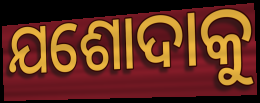
ଯଶୋଦାକୁ